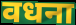
वधना